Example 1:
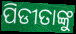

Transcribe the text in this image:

ପିଡୀତାଙ୍କୁ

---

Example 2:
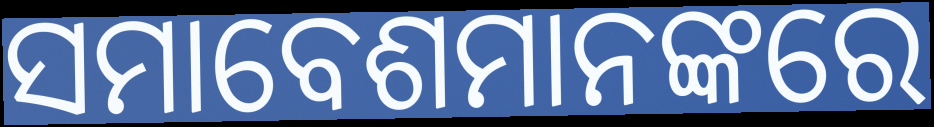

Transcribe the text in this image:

ସମାବେଶମାନଙ୍କରେ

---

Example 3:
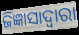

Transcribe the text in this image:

ଜିଜ୍ଞାସାଦ୍ୱାରା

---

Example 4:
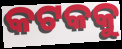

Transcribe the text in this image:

କଟକକୁ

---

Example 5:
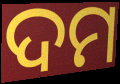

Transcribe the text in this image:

ଦମ